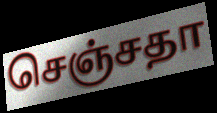
செஞ்சதா